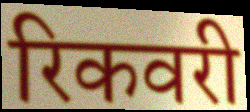
रिकवरी